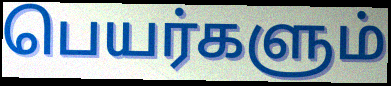
பெயர்களும்